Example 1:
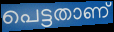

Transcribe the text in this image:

പെട്ടതാണ്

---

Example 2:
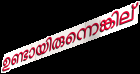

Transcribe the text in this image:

ഉണ്ടായിരുന്നെങ്കില്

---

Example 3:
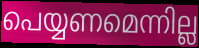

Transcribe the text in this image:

പെയ്യണമെന്നില്ല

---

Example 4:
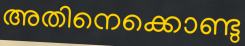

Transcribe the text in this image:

അതിനെക്കൊണ്ടു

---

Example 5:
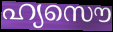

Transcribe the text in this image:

ഹ്യസൌ